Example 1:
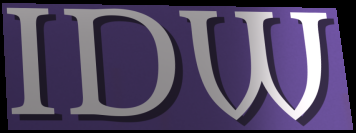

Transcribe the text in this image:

IDW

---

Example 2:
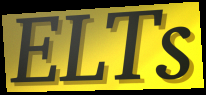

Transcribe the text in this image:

ELTs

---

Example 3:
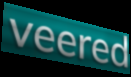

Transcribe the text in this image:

veered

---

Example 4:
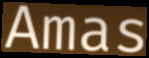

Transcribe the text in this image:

Amas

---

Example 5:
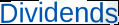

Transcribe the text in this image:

Dividends